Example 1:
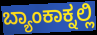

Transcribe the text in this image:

ಬ್ಯಾಂಕಾಕ್ನಲ್ಲಿ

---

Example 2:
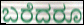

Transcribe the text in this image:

ಬರೆದರೂ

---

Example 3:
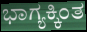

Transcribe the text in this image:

ಭಾಗ್ಯಕ್ಕಿಂತ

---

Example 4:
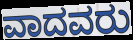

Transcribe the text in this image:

ವಾದವರು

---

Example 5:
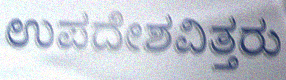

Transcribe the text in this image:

ಉಪದೇಶವಿತ್ತರು